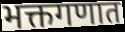
भक्तगणात